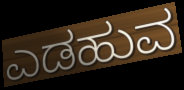
ಎಡಹುವ